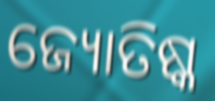
ଜ୍ୟୋତିଷ୍କ